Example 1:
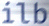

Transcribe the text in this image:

ilb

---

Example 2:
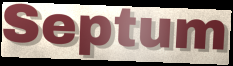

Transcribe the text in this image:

Septum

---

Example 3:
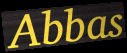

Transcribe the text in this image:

Abbas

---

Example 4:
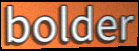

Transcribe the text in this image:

bolder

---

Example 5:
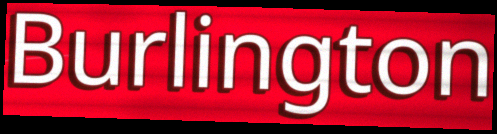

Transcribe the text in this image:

Burlington